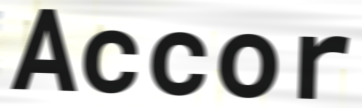
Accor